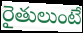
రైతులుంటే